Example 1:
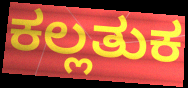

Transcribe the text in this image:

ಕಲ್ಲತುಕ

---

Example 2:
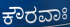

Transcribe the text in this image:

ಕೌರವಾಃ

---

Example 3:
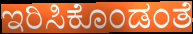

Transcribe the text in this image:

ಇರಿಸಿಕೊಂಡಂತೆ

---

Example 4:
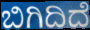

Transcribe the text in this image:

ಬಿಗಿದಿದೆ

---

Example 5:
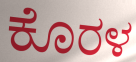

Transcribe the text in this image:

ಕೊರಳ